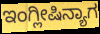
ಇಂಗ್ಲೀಷಿನ್ಯಾಗ